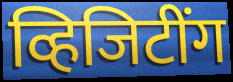
व्हिजिटींग